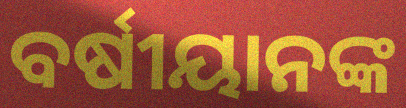
ବର୍ଷୀୟାନଙ୍କ